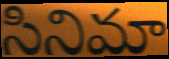
సినిమా